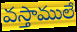
వస్తాములే